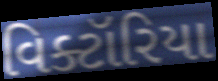
વિક્ટૉરિયા